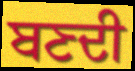
ਬਣਦੀ